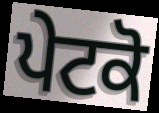
ਪੇਟਕੋ